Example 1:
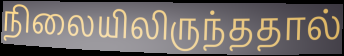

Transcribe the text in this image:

நிலையிலிருந்ததால்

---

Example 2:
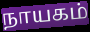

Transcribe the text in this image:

நாயகம்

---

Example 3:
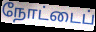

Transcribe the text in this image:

நோட்டைப்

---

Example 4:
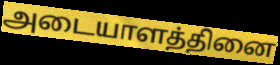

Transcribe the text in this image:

அடையாளத்தினை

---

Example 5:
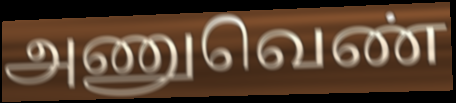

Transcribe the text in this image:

அணுவெண்